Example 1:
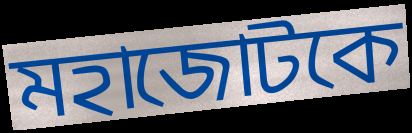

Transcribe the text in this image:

মহাজোটকে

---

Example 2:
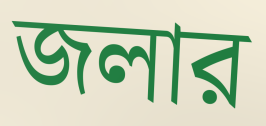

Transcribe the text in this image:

জলার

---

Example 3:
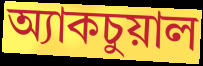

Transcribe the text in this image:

অ্যাকচুয়াল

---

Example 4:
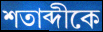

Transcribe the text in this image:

শতাব্দীকে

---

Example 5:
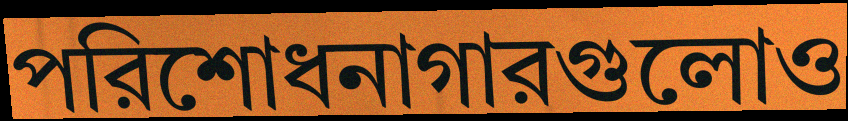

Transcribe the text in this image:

পরিশোধনাগারগুলোও